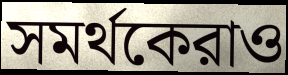
সমর্থকেরাও